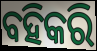
ବହିକରି